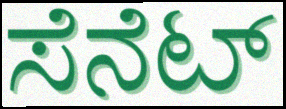
ಸೆನೆಟ್